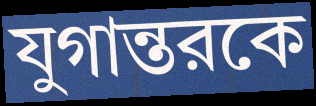
যুগান্তরকে